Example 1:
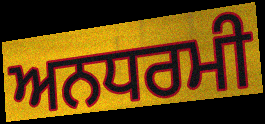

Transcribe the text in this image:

ਅਨਧਰਮੀ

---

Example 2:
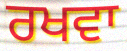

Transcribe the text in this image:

ਰਖਵਾ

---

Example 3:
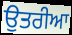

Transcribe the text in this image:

ਉਤਰੀਆ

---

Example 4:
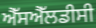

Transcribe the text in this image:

ਐੱਸਐੱਲਡੀਸੀ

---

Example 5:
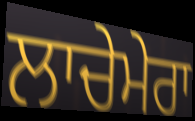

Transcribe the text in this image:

ਲਾਚੇਮੇਰਾ